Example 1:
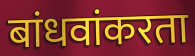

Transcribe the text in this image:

बांधवांकरता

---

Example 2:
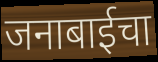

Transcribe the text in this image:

जनाबाईचा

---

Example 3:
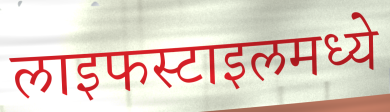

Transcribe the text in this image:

लाइफस्टाइलमध्ये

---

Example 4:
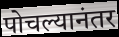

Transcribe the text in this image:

पोचल्यानंतर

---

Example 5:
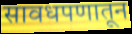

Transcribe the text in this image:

सावधपणातून